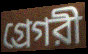
গ্রেগরী